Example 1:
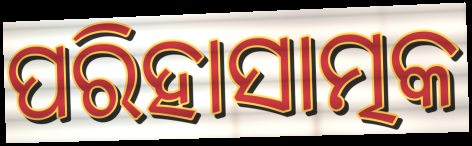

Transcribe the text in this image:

ପରିହାସାତ୍ମକ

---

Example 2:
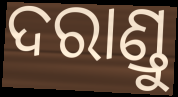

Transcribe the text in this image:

ଦରାଣ୍ଡୁ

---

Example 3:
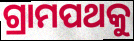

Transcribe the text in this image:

ଗ୍ରାମପଥକୁ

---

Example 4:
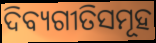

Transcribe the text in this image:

ଦିବ୍ୟଗୀତିସମୂହ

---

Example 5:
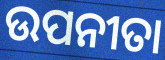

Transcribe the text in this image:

ଉପନୀତା